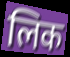
लिक